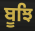
ਬੂਝਿ